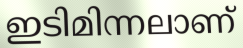
ഇടിമിന്നലാണ്